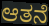
ಆತನೆ